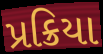
પ્રક્રિયા